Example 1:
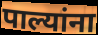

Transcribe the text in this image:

पाल्यांना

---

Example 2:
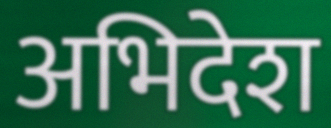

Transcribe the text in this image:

अभिदेश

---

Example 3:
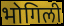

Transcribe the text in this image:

भोगिली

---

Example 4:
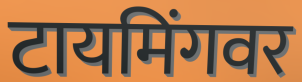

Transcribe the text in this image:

टायमिंगवर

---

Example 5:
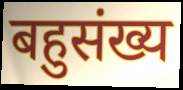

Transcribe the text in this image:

बहुसंख्य